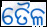
ତୈଳ